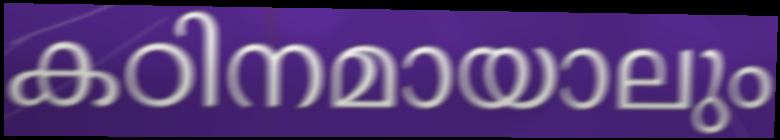
കഠിനമായാലും